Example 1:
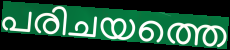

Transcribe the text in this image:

പരിചയത്തെ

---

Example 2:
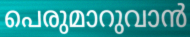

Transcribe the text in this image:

പെരുമാറുവാൻ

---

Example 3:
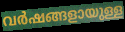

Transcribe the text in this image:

വർഷങ്ങളായുള്ള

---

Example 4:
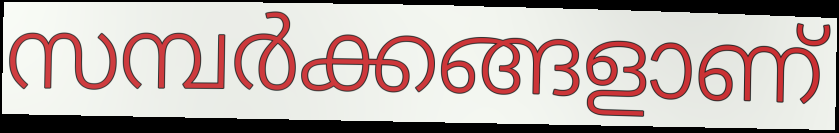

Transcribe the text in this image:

സമ്പർക്കങ്ങളാണ്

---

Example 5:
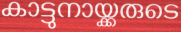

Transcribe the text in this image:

കാട്ടുനായ്ക്കരുടെ